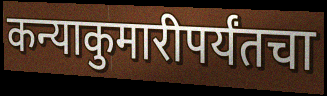
कन्याकुमारीपर्यंतचा